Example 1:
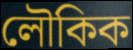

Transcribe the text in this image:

লৌকিক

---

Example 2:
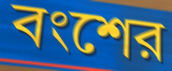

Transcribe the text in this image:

বংশের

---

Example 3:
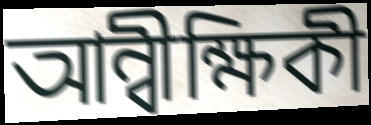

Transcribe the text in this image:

আন্বীক্ষিকী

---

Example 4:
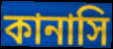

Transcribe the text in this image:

কানাসি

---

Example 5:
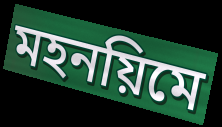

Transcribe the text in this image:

মহনয়িমে